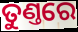
ତୁଣ୍ତରେ